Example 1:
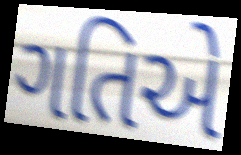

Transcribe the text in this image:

ગતિએ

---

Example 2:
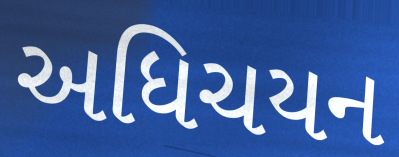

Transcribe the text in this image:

અધિચયન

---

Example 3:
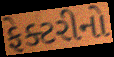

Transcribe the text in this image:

ફેક્ટરીનો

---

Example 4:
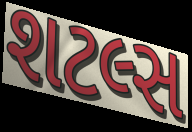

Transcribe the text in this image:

શટલ્સ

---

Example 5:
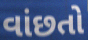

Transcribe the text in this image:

વાંછતો